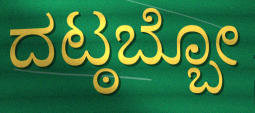
ದಟ್ಠಬ್ಬೋ